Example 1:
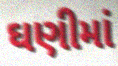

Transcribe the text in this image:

ઘણીમાં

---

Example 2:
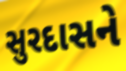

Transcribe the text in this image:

સુરદાસને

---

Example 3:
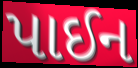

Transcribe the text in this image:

પાઈન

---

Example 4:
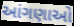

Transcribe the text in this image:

આંગણાઓ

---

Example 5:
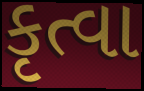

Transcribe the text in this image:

કૃત્વા